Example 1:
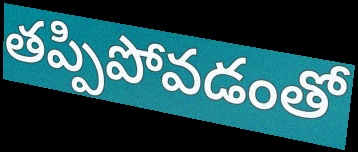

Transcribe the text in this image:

తప్పిపోవడంతో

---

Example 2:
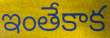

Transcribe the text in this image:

ఇంతేకాక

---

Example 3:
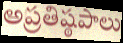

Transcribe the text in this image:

అప్రతిష్ఠపాలు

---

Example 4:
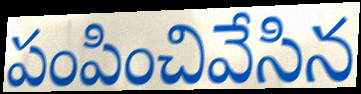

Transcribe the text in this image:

పంపించివేసిన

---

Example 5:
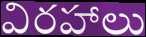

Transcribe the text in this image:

విరహాలు